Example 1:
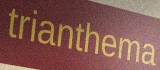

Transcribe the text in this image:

trianthema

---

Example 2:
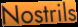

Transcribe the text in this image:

Nostrils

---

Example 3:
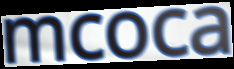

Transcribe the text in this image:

mcoca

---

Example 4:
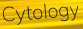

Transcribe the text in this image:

Cytology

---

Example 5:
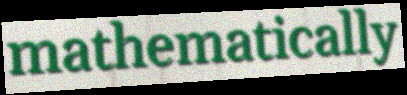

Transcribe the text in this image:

mathematically